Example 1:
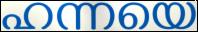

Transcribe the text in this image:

ഹന്നയെ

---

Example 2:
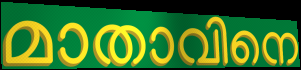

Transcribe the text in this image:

മാതാവിനെ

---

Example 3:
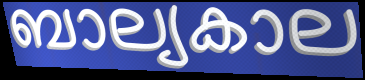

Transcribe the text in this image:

ബാല്യകാല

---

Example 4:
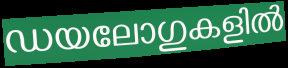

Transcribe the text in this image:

ഡയലോഗുകളിൽ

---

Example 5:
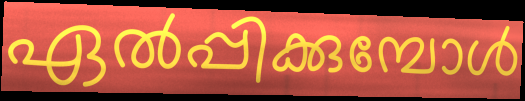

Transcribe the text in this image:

ഏൽപ്പിക്കുമ്പോൾ